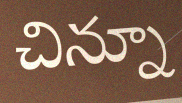
చిన్నూ